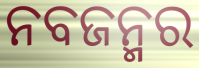
ନବଜନ୍ମର